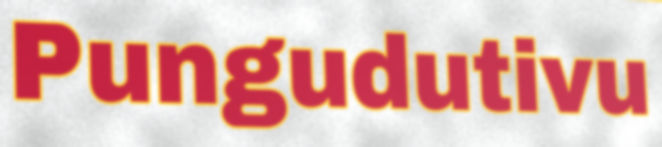
Pungudutivu